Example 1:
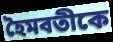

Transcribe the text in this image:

হৈমবতীকে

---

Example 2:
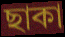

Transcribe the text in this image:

ছাকা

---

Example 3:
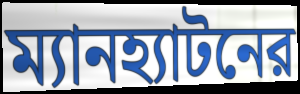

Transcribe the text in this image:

ম্যানহ্যাটনের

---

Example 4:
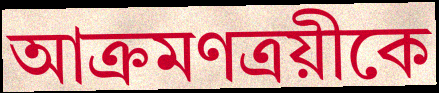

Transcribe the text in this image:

আক্রমণত্রয়ীকে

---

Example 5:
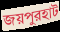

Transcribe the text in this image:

জয়পুরহাট